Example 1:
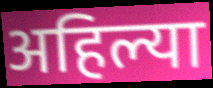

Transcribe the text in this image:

अहिल्या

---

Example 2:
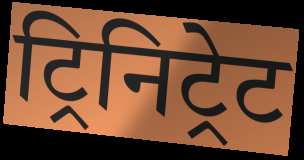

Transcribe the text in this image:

ट्रिनिट्रेट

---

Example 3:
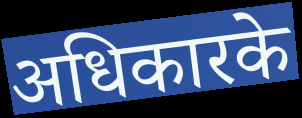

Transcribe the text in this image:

अधिकारके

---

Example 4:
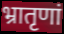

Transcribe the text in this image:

भ्रातृणां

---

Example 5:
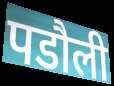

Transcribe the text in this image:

पडौली